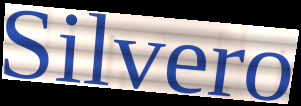
Silvero